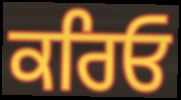
ਕਰਿਓ